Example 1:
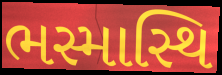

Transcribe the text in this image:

ભસ્માસ્થિ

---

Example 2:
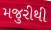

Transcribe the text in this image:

મજુરીથી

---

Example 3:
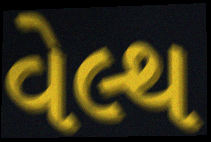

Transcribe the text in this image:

વેલ્થ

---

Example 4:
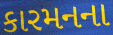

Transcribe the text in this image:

કારમનના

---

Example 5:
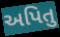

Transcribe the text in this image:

અપિતુ